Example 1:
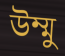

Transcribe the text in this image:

উম্মু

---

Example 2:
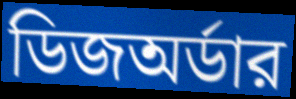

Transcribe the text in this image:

ডিজঅর্ডার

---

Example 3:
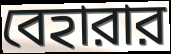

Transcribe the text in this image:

বেহারার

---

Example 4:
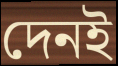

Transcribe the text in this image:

দেনই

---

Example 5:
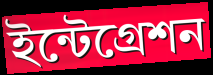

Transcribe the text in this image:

ইন্টেগ্রেশন